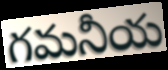
గమనీయ